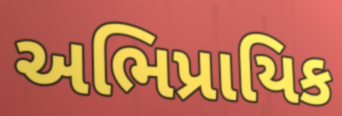
અભિપ્રાયિક